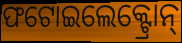
ଫଟୋଇଲେକ୍ଟ୍ରୋନ୍